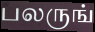
பலருங்